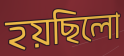
হয়ছিলো